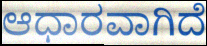
ಆಧಾರವಾಗಿದೆ